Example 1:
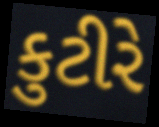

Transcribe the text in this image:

કુટીરે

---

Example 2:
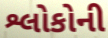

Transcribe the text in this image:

શ્લોકોની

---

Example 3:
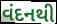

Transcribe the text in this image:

વંદનથી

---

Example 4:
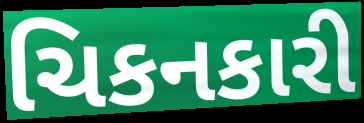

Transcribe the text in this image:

ચિકનકારી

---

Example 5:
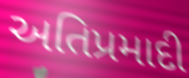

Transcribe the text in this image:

અતિપ્રમાદી